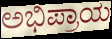
ಅಭಿಪ್ರಾಯ